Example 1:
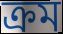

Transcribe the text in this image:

ক্রম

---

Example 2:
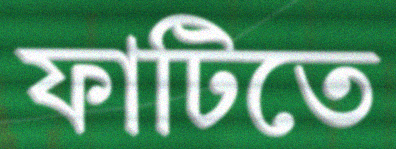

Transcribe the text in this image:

ফাটিতে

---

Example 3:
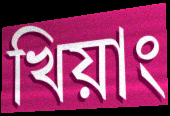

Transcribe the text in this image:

খিয়াং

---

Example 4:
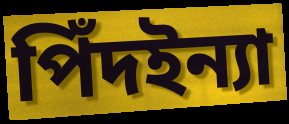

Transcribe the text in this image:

পিঁদইন্যা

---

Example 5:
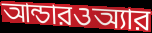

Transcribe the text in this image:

আন্ডারওঅ্যার